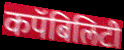
कपॅबिलिटी